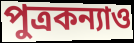
পুত্রকন্যাও